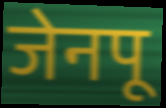
जेनपू